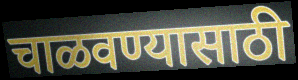
चाळवण्यासाठी